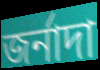
জর্নাদা